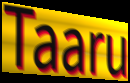
Taaru